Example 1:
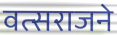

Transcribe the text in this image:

वत्सराजने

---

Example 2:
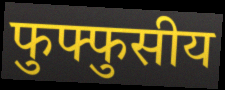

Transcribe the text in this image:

फुफ्फुसीय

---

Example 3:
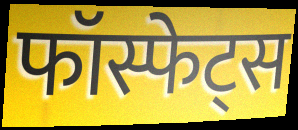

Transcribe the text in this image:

फॉस्फेट्स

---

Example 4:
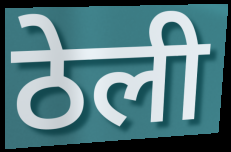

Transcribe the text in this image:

ठेली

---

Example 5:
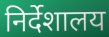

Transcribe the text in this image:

निर्देशालय